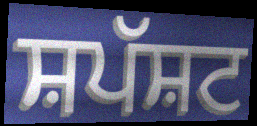
ਸ਼ਪੱਸ਼ਟ